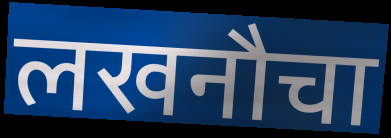
लखनौचा